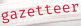
gazetteer